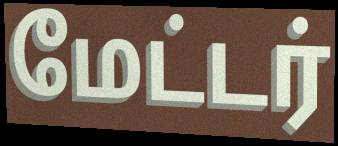
மேட்டர்